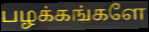
பழக்கங்களே